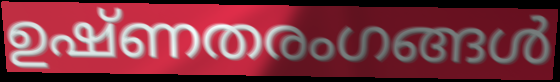
ഉഷ്ണതരംഗങ്ങൾ